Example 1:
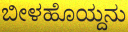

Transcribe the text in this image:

ಬೀಳಹೊಯ್ದನು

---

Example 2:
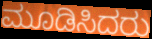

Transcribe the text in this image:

ಮೂಡಿಸಿದರು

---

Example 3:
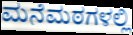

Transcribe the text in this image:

ಮನೆಮಠಗಳಲ್ಲಿ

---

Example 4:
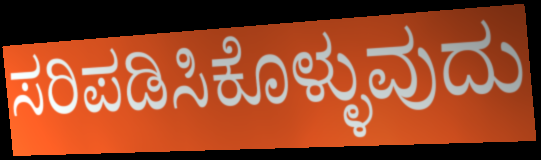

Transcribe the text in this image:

ಸರಿಪಡಿಸಿಕೊಳ್ಳುವುದು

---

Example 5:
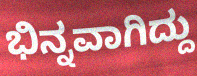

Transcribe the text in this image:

ಭಿನ್ನವಾಗಿದ್ದು